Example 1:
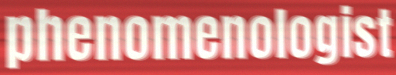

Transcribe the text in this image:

phenomenologist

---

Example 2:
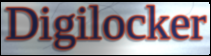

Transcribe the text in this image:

Digilocker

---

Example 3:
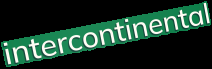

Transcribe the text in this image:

intercontinental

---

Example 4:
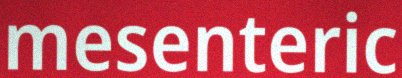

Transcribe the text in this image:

mesenteric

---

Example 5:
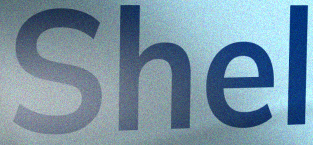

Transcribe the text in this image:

Shel